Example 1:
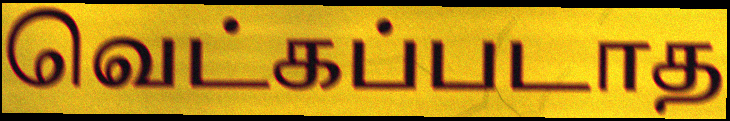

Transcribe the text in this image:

வெட்கப்படாத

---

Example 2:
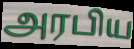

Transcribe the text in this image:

அரபிய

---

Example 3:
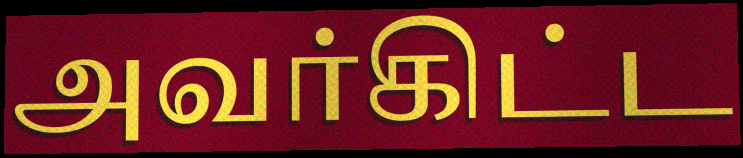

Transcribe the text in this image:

அவர்கிட்ட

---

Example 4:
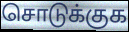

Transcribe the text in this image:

சொடுக்குக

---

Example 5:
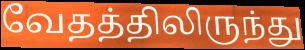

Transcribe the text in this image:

வேதத்திலிருந்து